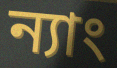
ন্যাং